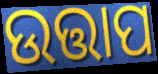
ଉତ୍ତାପ